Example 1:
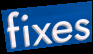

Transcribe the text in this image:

fixes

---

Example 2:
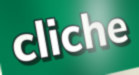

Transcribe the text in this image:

cliche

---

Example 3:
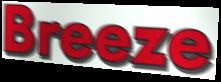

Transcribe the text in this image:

Breeze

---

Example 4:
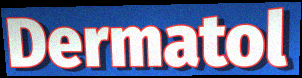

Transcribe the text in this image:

Dermatol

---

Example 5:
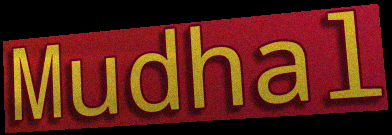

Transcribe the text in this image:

Mudhal